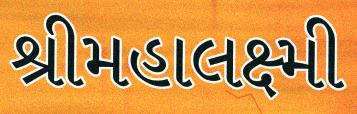
શ્રીમહાલક્ષ્મી